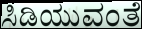
ಸಿಡಿಯುವಂತೆ